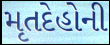
મૃતદેહોની